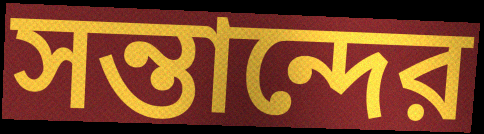
সন্তান্দের